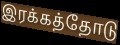
இரக்கத்தோடு